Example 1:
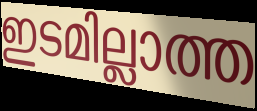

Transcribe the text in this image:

ഇടമില്ലാത്ത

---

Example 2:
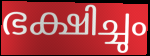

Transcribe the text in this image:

ഭക്ഷിച്ചും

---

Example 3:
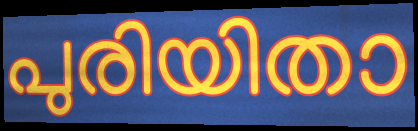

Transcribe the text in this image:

പുരിയിതാ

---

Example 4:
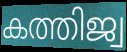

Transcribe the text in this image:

കത്തിജ്വ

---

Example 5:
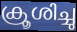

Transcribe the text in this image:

ക്രൂശിച്ചു